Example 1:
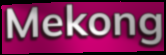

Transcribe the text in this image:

Mekong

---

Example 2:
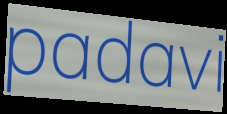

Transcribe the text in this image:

padavi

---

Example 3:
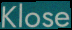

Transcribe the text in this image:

Klose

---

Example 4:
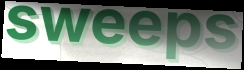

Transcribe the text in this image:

sweeps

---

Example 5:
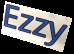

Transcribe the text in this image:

Ezzy